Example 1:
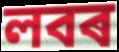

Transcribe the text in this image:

লবৰ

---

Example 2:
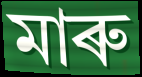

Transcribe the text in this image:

মাৰু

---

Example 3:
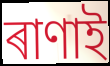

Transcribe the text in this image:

ৰাণাই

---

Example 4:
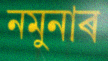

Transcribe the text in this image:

নমুনাৰ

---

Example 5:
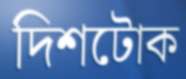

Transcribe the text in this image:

দিশটোক